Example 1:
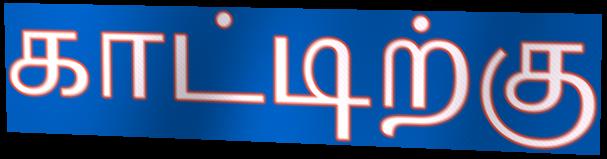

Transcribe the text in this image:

காட்டிற்கு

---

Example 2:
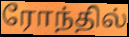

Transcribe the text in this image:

ரோந்தில்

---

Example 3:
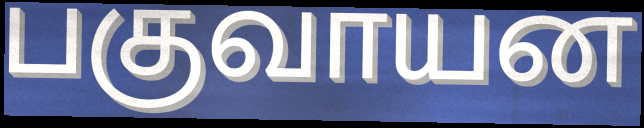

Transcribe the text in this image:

பகுவாயன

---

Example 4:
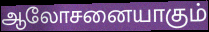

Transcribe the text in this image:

ஆலோசனையாகும்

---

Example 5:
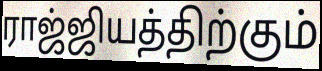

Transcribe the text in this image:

ராஜ்ஜியத்திற்கும்